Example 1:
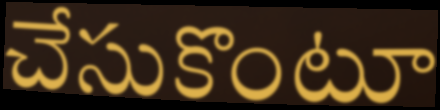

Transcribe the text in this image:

చేసుకొంటూ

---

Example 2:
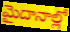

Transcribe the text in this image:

మైదానాల్లో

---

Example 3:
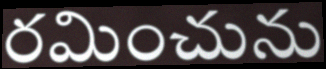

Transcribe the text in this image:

రమించును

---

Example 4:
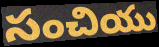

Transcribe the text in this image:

సంచియు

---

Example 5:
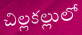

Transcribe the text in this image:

చిల్లకల్లులో